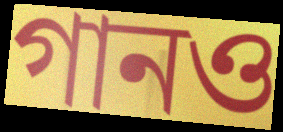
গানও